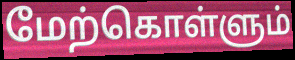
மேற்கொள்ளும்